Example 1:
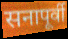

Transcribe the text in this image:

सनापूर्वी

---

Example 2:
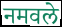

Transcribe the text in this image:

नमवले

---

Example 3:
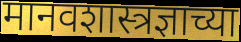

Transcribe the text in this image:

मानवशास्त्रज्ञाच्या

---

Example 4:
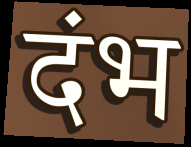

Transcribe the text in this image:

दंभ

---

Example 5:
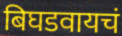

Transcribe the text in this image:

बिघडवायचं